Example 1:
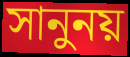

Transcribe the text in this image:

সানুনয়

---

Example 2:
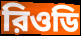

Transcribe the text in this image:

রিওডি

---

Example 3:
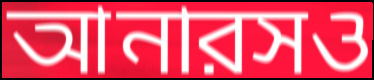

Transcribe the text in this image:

আনারসও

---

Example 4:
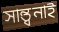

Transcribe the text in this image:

সান্ত্বনাই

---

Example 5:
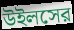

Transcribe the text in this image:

উইলসের